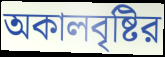
অকালবৃষ্টির